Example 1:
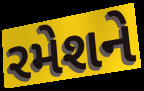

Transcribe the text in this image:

રમેશને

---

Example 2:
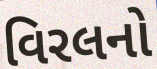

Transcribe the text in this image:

વિરલનો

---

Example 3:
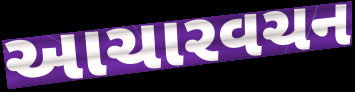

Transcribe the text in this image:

આચારવચન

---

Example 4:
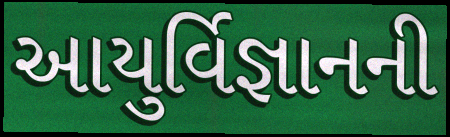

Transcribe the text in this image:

આયુર્વિજ્ઞાનની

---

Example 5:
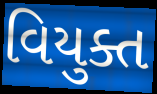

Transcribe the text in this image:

વિયુક્ત